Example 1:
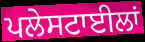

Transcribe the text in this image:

ਪਲੇਸਟਾਈਲਾਂ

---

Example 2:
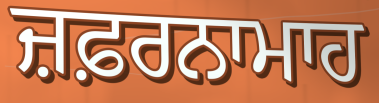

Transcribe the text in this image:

ਜ਼ਫ਼ਰਨਾਮਾਹ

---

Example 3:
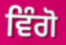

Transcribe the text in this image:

ਵਿੰਗੋ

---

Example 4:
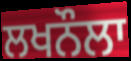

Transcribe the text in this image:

ਲਖਨੌਲਾ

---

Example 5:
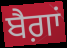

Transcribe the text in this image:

ਬੈਗ਼ਾਂ